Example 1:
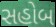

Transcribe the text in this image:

સહોબ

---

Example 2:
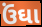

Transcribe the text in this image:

ઉંઘા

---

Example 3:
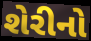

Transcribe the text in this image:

શેરીનો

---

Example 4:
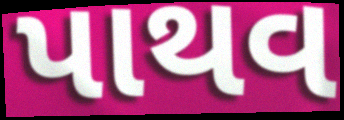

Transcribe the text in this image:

પાથવ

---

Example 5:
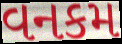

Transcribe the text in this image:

વનકમ